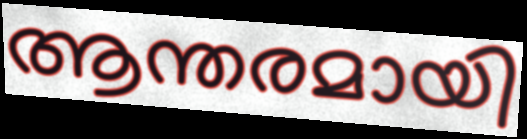
ആന്തരമായി